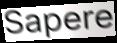
Sapere